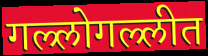
गल्लोगल्लीत